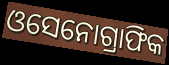
ଓସେନୋଗ୍ରାଫିକ